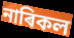
নাৰিকল